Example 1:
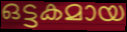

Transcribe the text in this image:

ഒട്ടകമായ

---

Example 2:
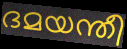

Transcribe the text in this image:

ദമയന്തീ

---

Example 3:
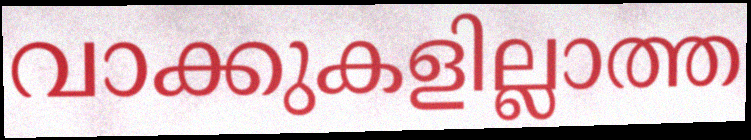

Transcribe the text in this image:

വാക്കുകളില്ലാത്ത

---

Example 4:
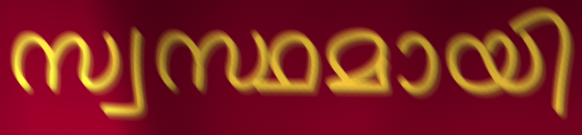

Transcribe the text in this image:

സ്വസ്ഥമായി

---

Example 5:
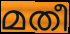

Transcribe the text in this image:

മതീ